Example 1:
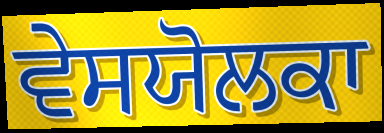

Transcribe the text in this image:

ਵੇਸਯੋਲਕਾ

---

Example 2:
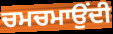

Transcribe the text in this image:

ਚਮਚਮਾਉਂਦੀ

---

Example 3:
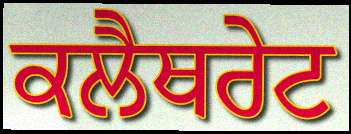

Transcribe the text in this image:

ਕਲੈਥਰੇਟ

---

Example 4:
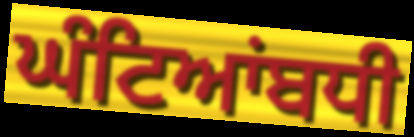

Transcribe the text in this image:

ਘੰਟਿਆਂਬਧੀ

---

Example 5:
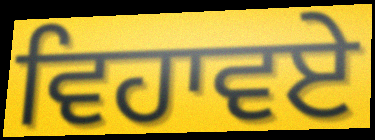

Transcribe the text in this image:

ਵਿਹਾਵਏ